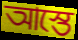
আস্তে